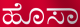
ಹೊಸಾ